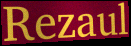
Rezaul